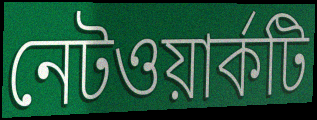
নেটওয়ার্কটি